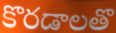
కొరడాలతొ